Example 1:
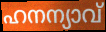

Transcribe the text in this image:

ഹനന്യാവ്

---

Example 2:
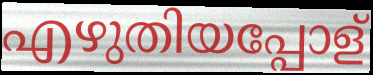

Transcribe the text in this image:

എഴുതിയപ്പോള്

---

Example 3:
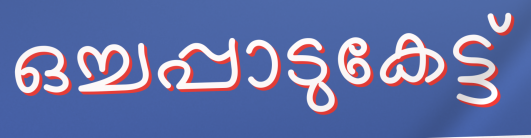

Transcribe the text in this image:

ഒച്ചപ്പാടുകേട്ട്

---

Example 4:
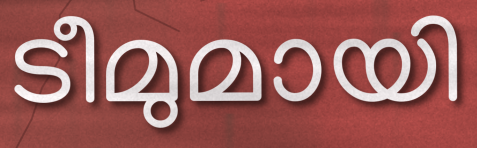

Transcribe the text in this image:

ടീമുമായി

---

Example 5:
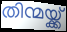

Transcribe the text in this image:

തിന്മയ്ക്ക്